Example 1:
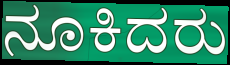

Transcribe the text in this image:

ನೂಕಿದರು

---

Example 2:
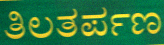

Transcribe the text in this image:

ತಿಲತರ್ಪಣ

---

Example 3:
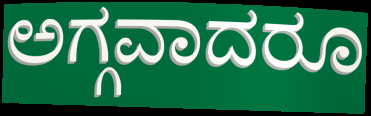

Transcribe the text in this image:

ಅಗ್ಗವಾದರೂ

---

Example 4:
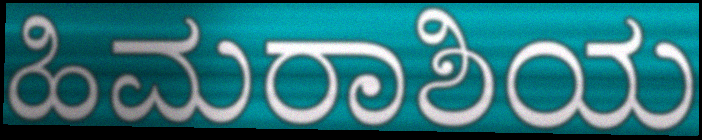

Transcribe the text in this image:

ಹಿಮರಾಶಿಯ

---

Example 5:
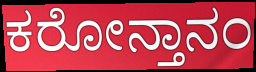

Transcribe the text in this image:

ಕರೋನ್ತಾನಂ